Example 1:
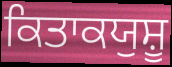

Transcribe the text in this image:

ਕਿਤਾਕਯੁਸ਼ੂ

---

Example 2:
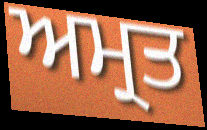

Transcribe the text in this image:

ਅਮ੍ਰਤ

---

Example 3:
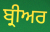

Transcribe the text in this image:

ਬ੍ਰੀਅਰ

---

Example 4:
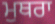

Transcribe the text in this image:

ਮੁਥਰਾ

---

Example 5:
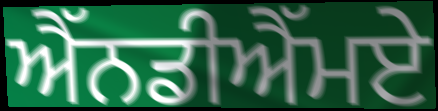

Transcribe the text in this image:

ਐੱਨਡੀਐੱਮਏ